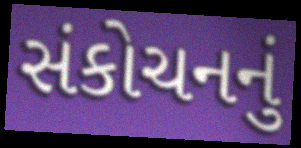
સંકોચનનું